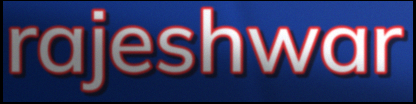
rajeshwar